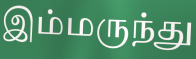
இம்மருந்து